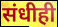
संधीही